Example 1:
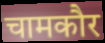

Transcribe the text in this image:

चामकौर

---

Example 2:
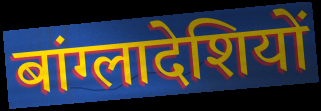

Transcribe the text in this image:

बांग्लादेशियों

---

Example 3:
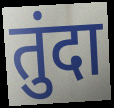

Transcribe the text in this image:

तुंदा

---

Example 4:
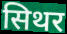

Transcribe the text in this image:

सिथर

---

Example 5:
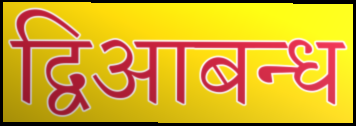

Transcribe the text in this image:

द्विआबन्ध